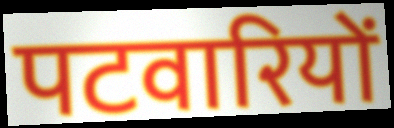
पटवारियों